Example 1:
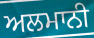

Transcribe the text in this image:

ਅਲਮਾਨੀ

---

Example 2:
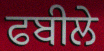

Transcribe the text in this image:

ਫਬੀਲੇ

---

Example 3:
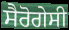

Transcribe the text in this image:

ਸੈਰੋਗੇਸੀ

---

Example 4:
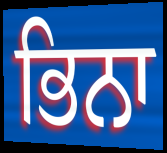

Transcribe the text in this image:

ਭਿਨਾ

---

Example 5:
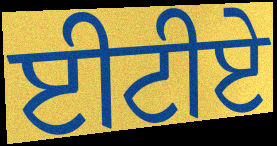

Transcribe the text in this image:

ਈਟੀਏ